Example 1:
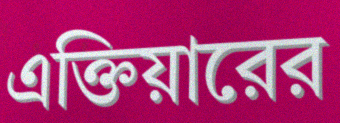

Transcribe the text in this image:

এক্তিয়ারের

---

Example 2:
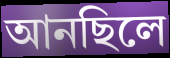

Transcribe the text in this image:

আনছিলে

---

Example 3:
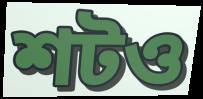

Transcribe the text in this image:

শটও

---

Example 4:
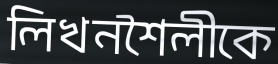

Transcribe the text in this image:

লিখনশৈলীকে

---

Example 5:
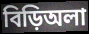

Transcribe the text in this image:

বিড়িঅলা